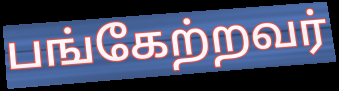
பங்கேற்றவர்